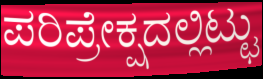
ಪರಿಪ್ರೇಕ್ಷದಲ್ಲಿಟ್ಟು